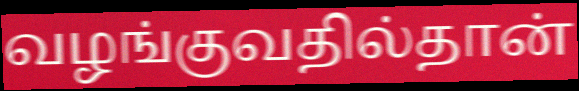
வழங்குவதில்தான்